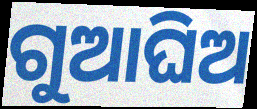
ଗୁଆଘିଅ